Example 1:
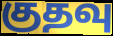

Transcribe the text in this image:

குதவு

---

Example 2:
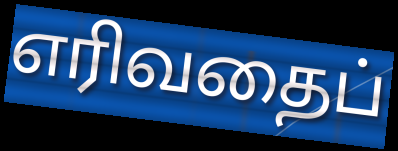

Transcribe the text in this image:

எரிவதைப்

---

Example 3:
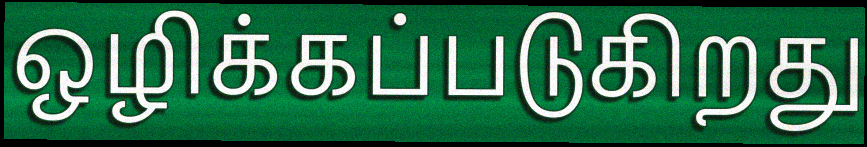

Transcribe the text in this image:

ஒழிக்கப்படுகிறது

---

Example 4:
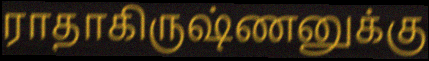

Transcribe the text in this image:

ராதாகிருஷ்ணனுக்கு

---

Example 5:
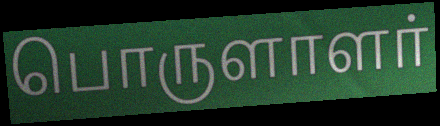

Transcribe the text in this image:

பொருளாளர்